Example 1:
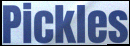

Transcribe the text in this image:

Pickles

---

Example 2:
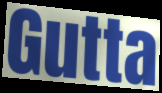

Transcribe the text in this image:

Gutta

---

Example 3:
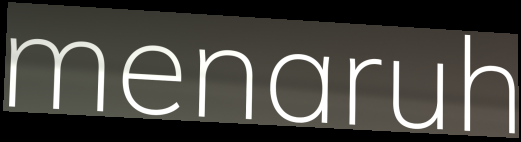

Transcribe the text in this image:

menaruh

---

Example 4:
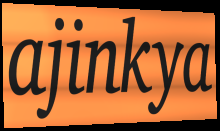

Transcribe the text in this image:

ajinkya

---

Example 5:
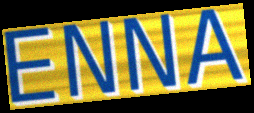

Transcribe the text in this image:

ENNA